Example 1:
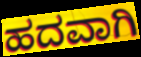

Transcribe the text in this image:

ಹದವಾಗಿ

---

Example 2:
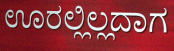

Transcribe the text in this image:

ಊರಲ್ಲಿಲ್ಲದಾಗ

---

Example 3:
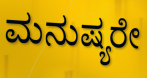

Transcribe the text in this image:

ಮನುಷ್ಯರೇ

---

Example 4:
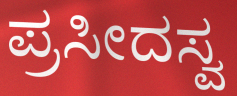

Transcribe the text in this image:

ಪ್ರಸೀದಸ್ವ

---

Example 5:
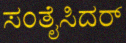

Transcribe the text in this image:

ಸಂತೈಸಿದರ್